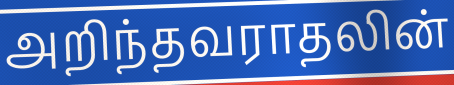
அறிந்தவராதலின்